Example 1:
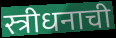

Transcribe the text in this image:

स्त्रीधनाची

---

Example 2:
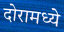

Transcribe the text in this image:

दोरामध्ये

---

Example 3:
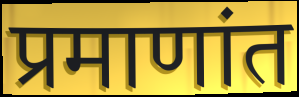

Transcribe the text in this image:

प्रमाणांत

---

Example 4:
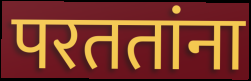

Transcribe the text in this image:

परततांना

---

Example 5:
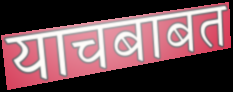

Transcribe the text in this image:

याचबाबत